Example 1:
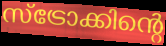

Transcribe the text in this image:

സ്ട്രോക്കിന്റെ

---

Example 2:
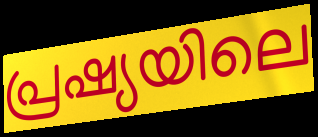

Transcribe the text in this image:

പ്രഷ്യയിലെ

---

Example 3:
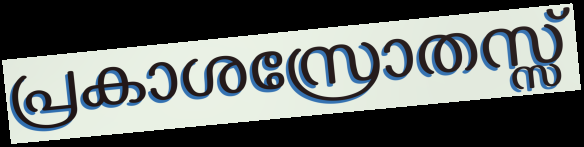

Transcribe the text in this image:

പ്രകാശസ്രോതസ്സ്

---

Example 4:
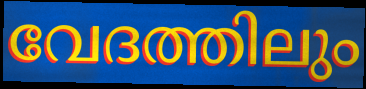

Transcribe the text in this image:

വേദത്തിലും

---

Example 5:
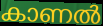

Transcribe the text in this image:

കാണൽ